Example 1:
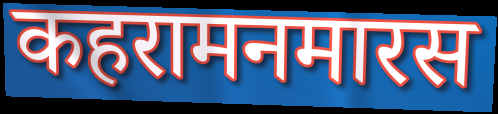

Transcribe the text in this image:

कहरामनमारस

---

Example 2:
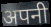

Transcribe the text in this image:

अपनी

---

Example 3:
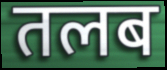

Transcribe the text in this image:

तलब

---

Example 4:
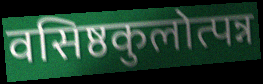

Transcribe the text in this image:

वसिष्ठकुलोत्पन्न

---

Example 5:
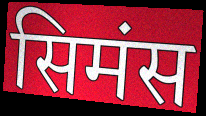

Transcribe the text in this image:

सिमंस